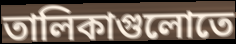
তালিকাগুলোতে